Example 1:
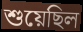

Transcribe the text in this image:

শুয়েছিল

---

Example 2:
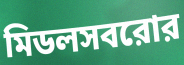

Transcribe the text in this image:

মিডলসবরোর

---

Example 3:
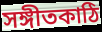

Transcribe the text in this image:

সঙ্গীতকাঠি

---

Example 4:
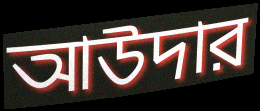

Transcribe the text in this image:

আউদার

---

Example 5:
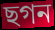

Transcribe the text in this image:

ছগন